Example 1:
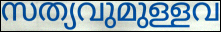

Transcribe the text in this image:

സത്യവുമുള്ളവ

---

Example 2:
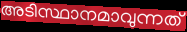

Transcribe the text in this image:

അടിസ്ഥാനമാവുന്നത്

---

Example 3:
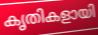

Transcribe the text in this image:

കൃതികളായി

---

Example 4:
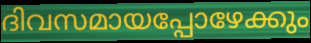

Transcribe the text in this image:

ദിവസമായപ്പോഴേക്കും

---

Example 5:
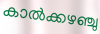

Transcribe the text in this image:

കാൽക്കഴഞ്ചു